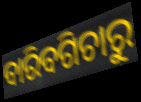
ବାରିବଗିଚାରୁ